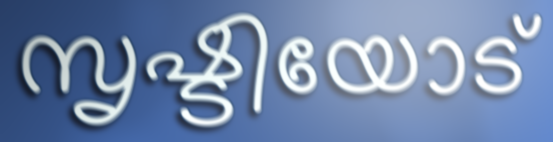
സൃഷ്ടിയോട്